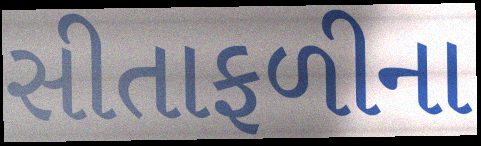
સીતાફળીના